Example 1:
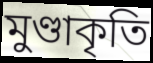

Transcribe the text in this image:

মুণ্ডাকৃতি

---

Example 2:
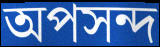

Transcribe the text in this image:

অপসন্দ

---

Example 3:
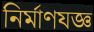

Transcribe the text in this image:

নির্মাণযজ্ঞ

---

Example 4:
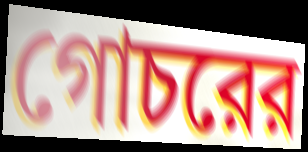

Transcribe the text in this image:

গোচরের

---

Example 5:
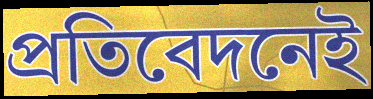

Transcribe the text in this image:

প্রতিবেদনেই